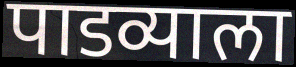
पाडव्याला